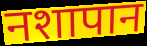
नशापान